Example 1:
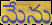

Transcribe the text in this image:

మేను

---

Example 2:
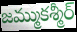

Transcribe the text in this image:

జమ్ముకశ్మీర్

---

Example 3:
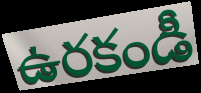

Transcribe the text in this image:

ఉరకండీ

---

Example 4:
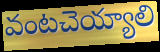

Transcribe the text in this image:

వంటచెయ్యాలి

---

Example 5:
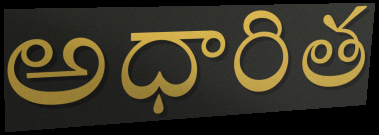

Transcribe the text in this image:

అధారిత